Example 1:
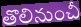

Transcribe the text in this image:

తొలినుంచీ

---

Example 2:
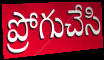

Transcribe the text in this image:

ప్రోగుచేసి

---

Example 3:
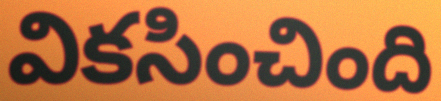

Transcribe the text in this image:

వికసించింది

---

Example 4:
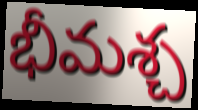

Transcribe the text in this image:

భీమశ్చ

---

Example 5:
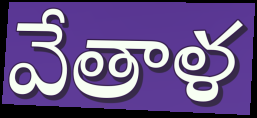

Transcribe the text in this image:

వేతాళ